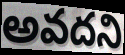
అవదని